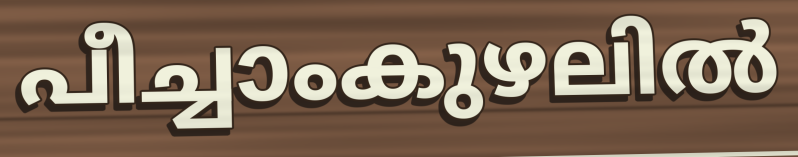
പീച്ചാംകുഴലിൽ